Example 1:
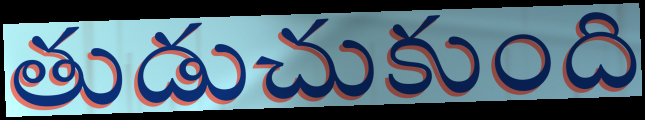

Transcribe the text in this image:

తుడుచుకుంది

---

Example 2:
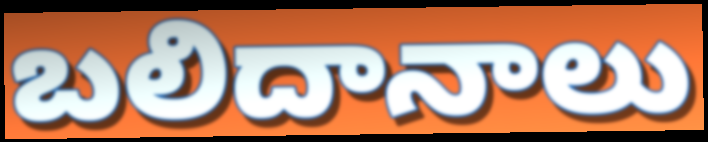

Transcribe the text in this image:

బలిదానాలు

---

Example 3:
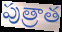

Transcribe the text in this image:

పుత్రాత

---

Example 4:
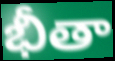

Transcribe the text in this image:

భీతా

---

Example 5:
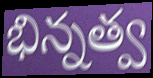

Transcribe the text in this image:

భిన్నత్వ